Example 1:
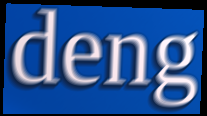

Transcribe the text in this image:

deng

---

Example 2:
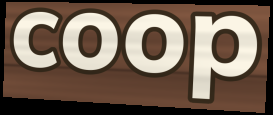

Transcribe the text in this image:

coop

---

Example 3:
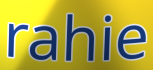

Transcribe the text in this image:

rahie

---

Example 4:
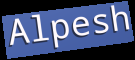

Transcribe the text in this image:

Alpesh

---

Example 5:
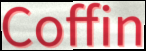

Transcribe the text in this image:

Coffin